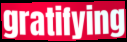
gratifying